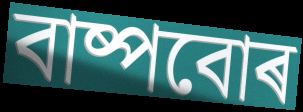
বাষ্পবোৰ